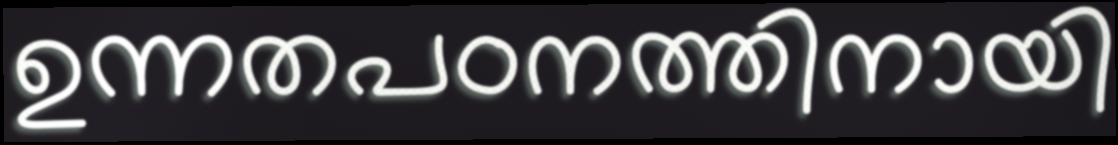
ഉന്നതപഠനത്തിനായി